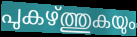
പുകഴ്ത്തുകയും